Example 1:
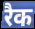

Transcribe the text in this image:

रैक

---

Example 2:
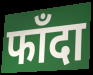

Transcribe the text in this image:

फाँदा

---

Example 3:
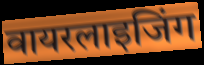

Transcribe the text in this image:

वायरलाइजिंग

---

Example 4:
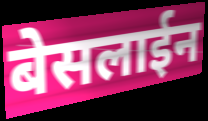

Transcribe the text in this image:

बेसलाईन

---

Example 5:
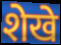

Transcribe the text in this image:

शेखे